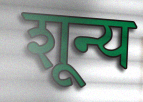
शून्य